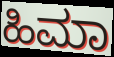
ಹಿಮಾ